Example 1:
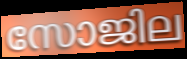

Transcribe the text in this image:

സോജില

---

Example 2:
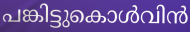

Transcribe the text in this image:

പങ്കിട്ടുകൊൾവിൻ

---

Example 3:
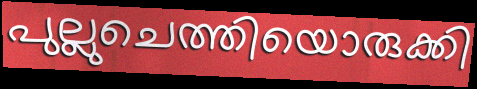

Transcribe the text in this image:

പുല്ലുചെത്തിയൊരുക്കി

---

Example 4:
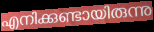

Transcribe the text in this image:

എനിക്കുണ്ടായിരുന്നു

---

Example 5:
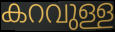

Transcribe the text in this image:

കറവുള്ള